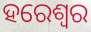
ହରେଶ୍ୱର